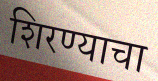
शिरण्याचा